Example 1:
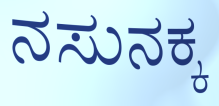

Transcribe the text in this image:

ನಸುನಕ್ಕ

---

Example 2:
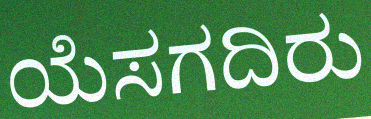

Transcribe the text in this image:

ಯೆಸಗದಿರು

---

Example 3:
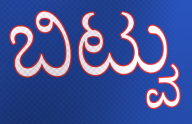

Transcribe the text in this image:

ಬಿಟ್ವು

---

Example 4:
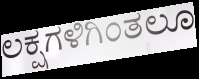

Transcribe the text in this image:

ಲಕ್ಷಗಳಿಗಿಂತಲೂ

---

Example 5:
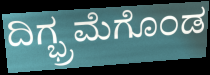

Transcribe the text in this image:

ದಿಗ್ಭ್ರಮೆಗೊಂಡ